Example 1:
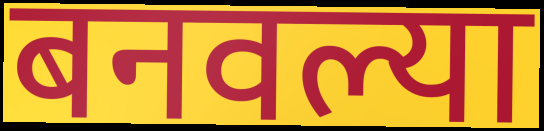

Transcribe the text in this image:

बनवल्या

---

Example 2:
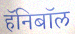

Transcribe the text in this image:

हॅनिबॉल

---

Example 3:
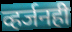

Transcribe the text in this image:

व्हर्जनही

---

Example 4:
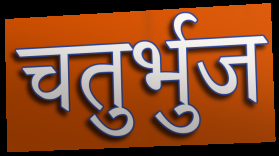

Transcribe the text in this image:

चतुर्भुज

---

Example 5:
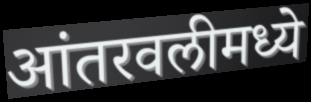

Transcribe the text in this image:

आंतरवलीमध्ये